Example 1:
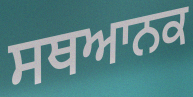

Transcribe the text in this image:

ਸਥਆਨਕ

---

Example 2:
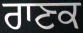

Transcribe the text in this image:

ਰਾਣਕ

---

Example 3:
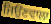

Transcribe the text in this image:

ਜਿਉਂਣਵਾਲਾ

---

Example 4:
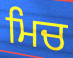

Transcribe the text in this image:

ਮਿਚ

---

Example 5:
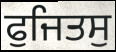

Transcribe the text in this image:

ਫੁਜਿਤਸੁ